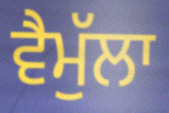
ਵੈਮੁੱਲਾ